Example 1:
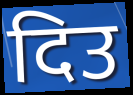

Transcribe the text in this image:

दिउ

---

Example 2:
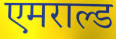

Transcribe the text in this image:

एमराल्ड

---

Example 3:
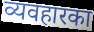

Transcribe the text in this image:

व्यवहारका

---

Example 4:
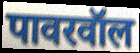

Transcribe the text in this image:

पावरवॉल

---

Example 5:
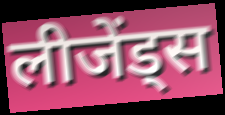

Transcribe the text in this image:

लीजेंड्स